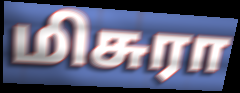
மிசுரா